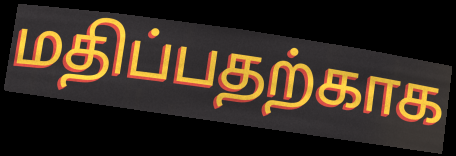
மதிப்பதற்காக